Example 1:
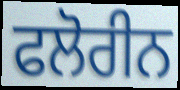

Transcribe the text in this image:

ਫਲੋਰੀਨ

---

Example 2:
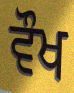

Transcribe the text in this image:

ਵੌਖ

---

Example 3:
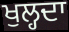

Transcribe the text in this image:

ਖੁਲ੍ਹਦਾ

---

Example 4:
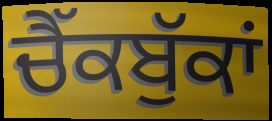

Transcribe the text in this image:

ਚੈੱਕਬੁੱਕਾਂ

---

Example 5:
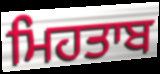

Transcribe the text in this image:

ਮਿਹਤਾਬ